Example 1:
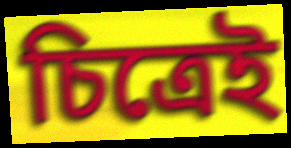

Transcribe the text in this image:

চিত্রেই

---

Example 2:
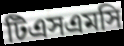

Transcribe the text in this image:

টিএসএমসি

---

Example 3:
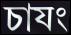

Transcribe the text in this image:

চাযং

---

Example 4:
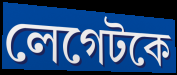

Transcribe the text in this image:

লেগেটকে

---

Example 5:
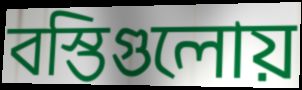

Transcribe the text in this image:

বস্তিগুলোয়